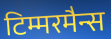
टिम्मरमैन्स